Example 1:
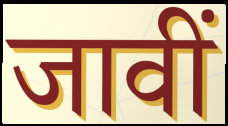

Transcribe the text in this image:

जावीं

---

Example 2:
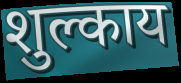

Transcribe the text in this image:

शुल्काय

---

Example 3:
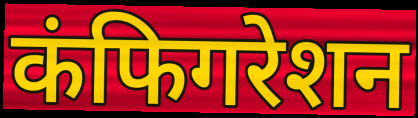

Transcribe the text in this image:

कंफिगरेशन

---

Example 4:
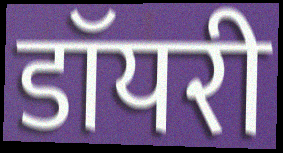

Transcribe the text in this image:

डॉयरी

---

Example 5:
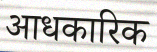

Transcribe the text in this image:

आधकारिक